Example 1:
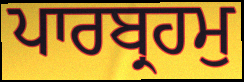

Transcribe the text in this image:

ਪਾਰਬ੍ਰਹਮੁ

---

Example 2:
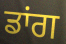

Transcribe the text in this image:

ਡਾਂਗ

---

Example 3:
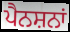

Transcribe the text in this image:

ਪੈਨਸ਼ਨਾਂ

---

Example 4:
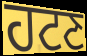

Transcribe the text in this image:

ਹਟਣ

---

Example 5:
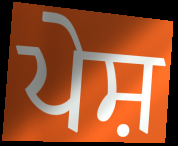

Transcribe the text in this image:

ਪੇਸ਼